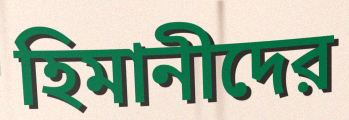
হিমানীদের